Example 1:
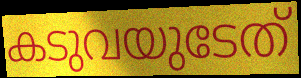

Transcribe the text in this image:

കടുവയുടേത്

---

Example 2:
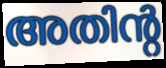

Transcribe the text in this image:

അതിന്റ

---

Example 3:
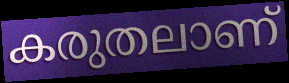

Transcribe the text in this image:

കരുതലാണ്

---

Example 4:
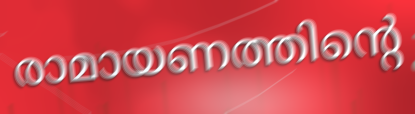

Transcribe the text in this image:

രാമായണത്തിന്റെ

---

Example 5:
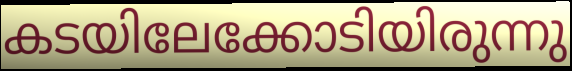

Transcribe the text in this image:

കടയിലേക്കോടിയിരുന്നു